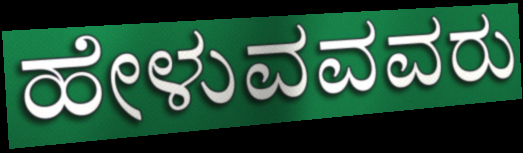
ಹೇಳುವವವರು